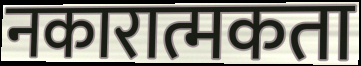
नकारात्मकता